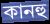
কানহু